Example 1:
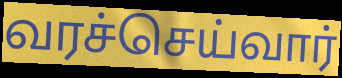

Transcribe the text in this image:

வரச்செய்வார்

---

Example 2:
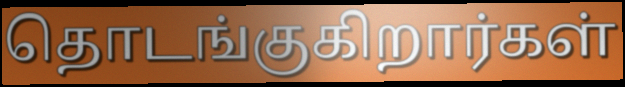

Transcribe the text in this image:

தொடங்குகிறார்கள்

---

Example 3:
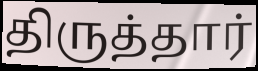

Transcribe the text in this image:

திருத்தார்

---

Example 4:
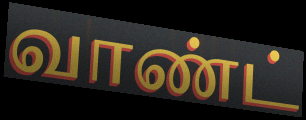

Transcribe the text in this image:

வாண்ட்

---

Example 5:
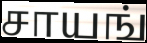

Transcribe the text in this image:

சாயங்